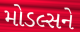
મોડલ્સને